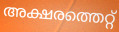
അക്ഷരത്തെറ്റ്